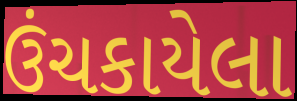
ઉંચકાયેલા